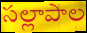
సల్లాపాల